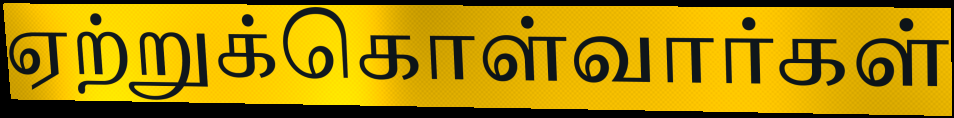
ஏற்றுக்கொள்வார்கள்